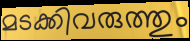
മടക്കിവരുത്തും